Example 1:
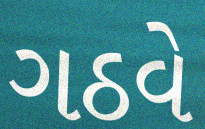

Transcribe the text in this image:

ગઠવે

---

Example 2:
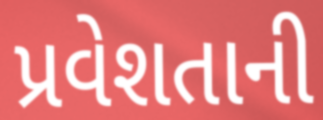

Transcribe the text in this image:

પ્રવેશતાની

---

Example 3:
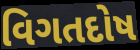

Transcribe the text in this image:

વિગતદોષ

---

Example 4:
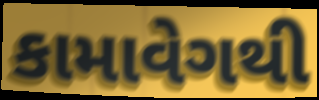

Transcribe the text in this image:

કામાવેગથી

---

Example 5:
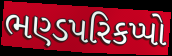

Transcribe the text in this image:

ભણ્ડપરિકપ્પો